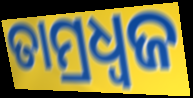
ତାମ୍ରଧ୍ୱଜ